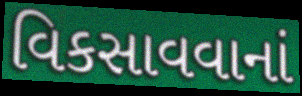
વિકસાવવાનાં